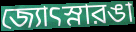
জ্যোৎস্নারঙা